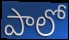
పాలో